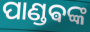
ପାଣ୍ଡଵଙ୍କ